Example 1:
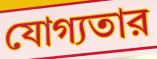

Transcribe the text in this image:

যোগ্যতার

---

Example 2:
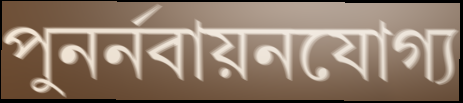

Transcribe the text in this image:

পুনর্নবায়নযোগ্য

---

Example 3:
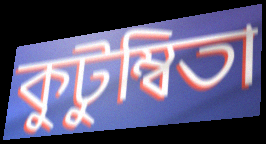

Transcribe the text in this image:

কুটুম্বিতা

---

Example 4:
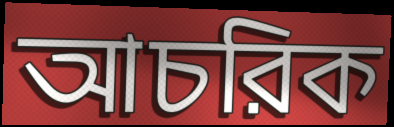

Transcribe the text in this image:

আচরিক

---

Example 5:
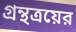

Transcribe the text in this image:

গ্রন্থত্রয়ের